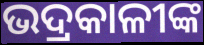
ଭଦ୍ରକାଳୀଙ୍କ